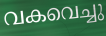
വകവെച്ചു